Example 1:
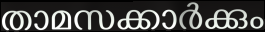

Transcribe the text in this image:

താമസക്കാർക്കും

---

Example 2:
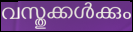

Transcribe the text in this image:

വസ്തുക്കൾക്കും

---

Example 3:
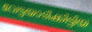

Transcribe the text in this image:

വേട്ടയാടിക്കിട്ടിയ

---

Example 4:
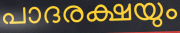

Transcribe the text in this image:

പാദരക്ഷയും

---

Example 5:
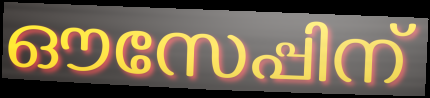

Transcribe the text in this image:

ഔസേപ്പിന്